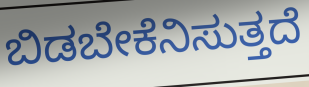
ಬಿಡಬೇಕೆನಿಸುತ್ತದೆ